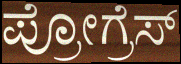
ಪ್ರೋಗ್ರೆಸ್